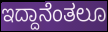
ಇದ್ದಾನೆಂತಲೂ